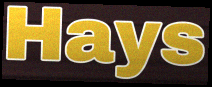
Hays